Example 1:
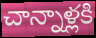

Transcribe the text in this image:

చాన్నాళ్లకి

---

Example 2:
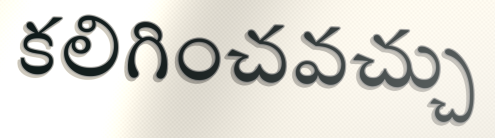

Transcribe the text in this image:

కలిగించవచ్చు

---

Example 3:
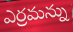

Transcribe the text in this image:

ఎర్రమన్ను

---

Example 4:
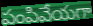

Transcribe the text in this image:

పంపివేయగా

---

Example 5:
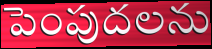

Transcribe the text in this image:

పెంపుదలను